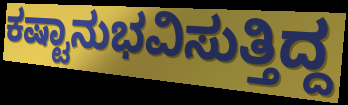
ಕಷ್ಟಾನುಭವಿಸುತ್ತಿದ್ದ